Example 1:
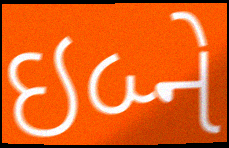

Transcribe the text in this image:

ઇબ્ને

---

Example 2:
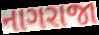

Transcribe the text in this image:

નાગરાજા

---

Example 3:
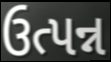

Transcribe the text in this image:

ઉત્પન્ન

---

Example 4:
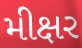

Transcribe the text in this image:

મીક્ષર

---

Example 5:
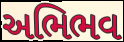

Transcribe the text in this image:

અભિભવ